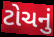
ટોચનું